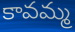
కావమ్మ